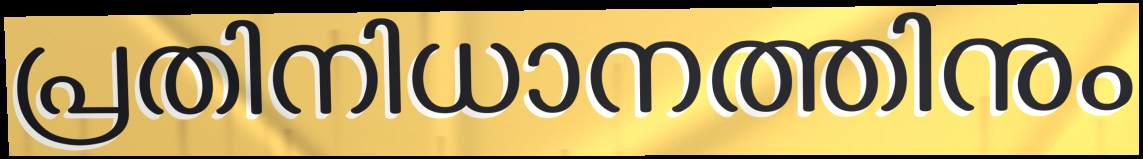
പ്രതിനിധാനത്തിനും